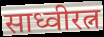
साध्वीरत्न